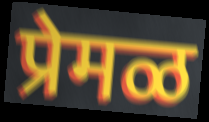
प्रेमळ